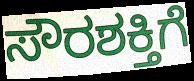
ಸೌರಶಕ್ತಿಗೆ